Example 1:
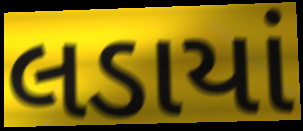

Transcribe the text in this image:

લડાયાં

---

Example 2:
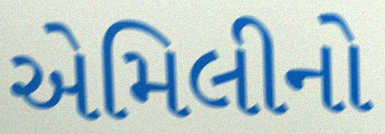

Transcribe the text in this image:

એમિલીનો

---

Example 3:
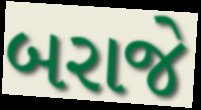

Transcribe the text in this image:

બરાજે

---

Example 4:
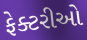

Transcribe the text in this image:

ફેક્ટરીઓ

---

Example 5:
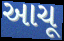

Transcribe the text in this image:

આચૂ